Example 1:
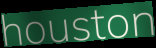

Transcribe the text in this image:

houston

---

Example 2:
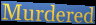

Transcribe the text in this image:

Murdered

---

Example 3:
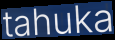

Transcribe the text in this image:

tahuka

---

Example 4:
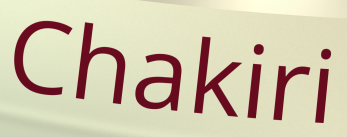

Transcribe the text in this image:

Chakiri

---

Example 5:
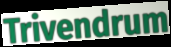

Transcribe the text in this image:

Trivendrum